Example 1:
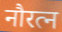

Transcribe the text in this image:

नौरत्न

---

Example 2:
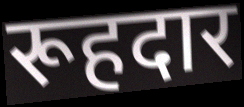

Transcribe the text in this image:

रूहदार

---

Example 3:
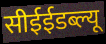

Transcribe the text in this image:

सीईईडब्ल्यू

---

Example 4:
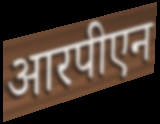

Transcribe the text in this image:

आरपीएन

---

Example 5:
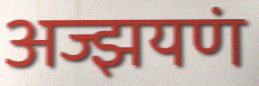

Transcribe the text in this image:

अज्झयणं